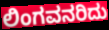
ಲಿಂಗವನರಿದು